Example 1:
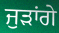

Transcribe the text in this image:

ਜੁੜਾਂਗੇ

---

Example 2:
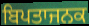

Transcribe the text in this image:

ਬਿਪਤਾਜਨਕ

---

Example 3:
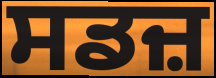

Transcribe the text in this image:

ਸਡਜ਼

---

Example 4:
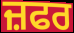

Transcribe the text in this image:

ਜ਼ਫਰ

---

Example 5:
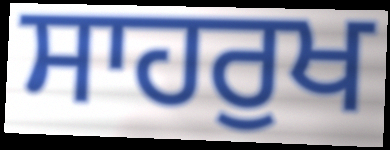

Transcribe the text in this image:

ਸਾਹਰੁਖ